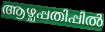
ആഴ്ചപ്പതിപ്പിൽ